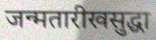
जन्मतारीखसुद्धा